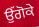
ਉੱਗੋਕੇ